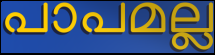
പാപമല്ല